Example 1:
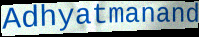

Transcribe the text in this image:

Adhyatmanand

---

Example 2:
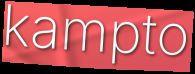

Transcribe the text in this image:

kampto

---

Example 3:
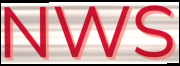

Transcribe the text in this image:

NWS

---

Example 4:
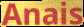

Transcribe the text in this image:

Anais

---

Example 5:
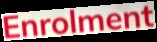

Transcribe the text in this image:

Enrolment